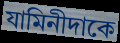
যামিনীদাকে